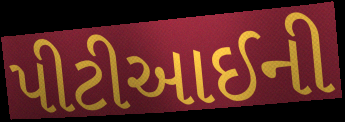
પીટીઆઈની